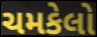
ચમકેલો